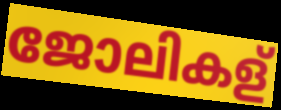
ജോലികള്